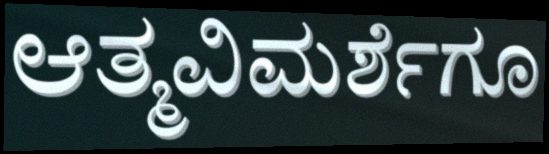
ಆತ್ಮವಿಮರ್ಶೆಗೂ